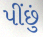
પીંછું